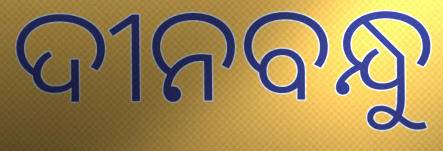
ଦୀନବନ୍ଧୁ